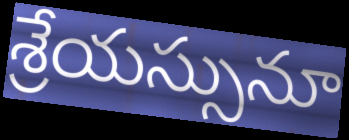
శ్రేయస్సునూ